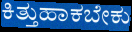
ಕಿತ್ತುಹಾಕಬೇಕು